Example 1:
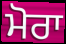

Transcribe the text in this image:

ਮੋਰਾ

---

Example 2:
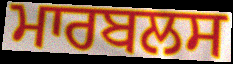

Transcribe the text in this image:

ਮਾਰਬਲਸ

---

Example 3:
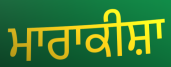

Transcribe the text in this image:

ਮਾਰਾਕੀਸ਼ਾ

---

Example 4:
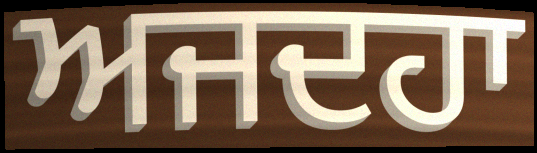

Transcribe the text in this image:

ਅਜਦਹਾ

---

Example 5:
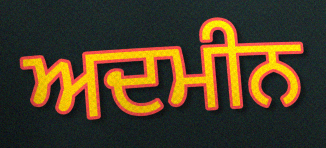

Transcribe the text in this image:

ਅਦਮੀਨ